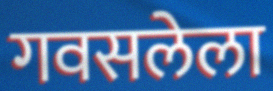
गवसलेला